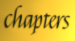
chapters